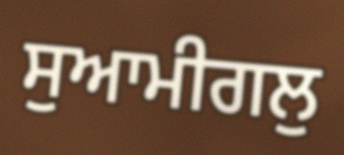
ਸੁਆਮੀਗਲੁ